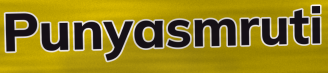
Punyasmruti